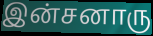
இன்சனாரு